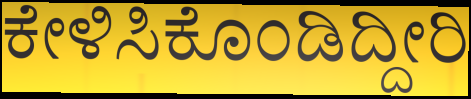
ಕೇಳಿಸಿಕೊಂಡಿದ್ದೀರಿ